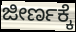
ಜೀರ್ಣಕ್ಕೆ